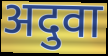
अदुवा